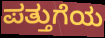
ಪತ್ತುಗೆಯ